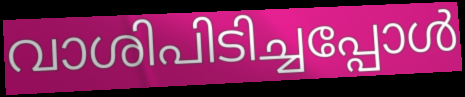
വാശിപിടിച്ചപ്പോൾ